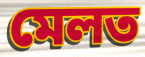
মেলত